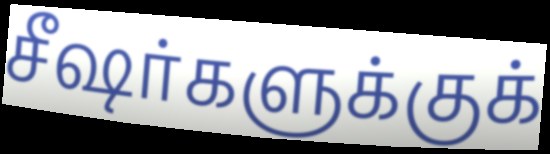
சீஷர்களுக்குக்